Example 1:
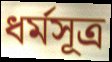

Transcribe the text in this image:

ধর্মসূত্র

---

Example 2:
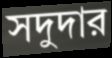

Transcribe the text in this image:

সদুদার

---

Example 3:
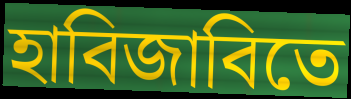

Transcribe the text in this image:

হাবিজাবিতে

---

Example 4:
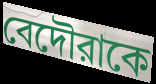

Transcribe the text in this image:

বেদৌরাকে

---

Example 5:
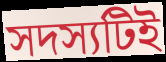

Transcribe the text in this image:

সদস্যটিই